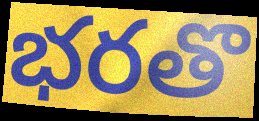
భరతొ